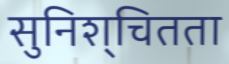
सुनिश्चितता